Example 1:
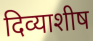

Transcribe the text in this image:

दिव्याशीष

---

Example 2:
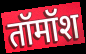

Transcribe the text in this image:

तॉमॉश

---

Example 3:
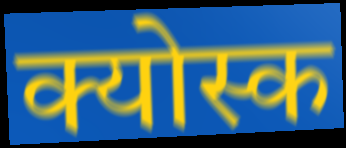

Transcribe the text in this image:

क्योस्क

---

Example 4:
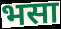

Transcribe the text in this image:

भसा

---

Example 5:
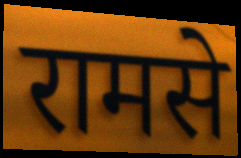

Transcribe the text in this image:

रामसे